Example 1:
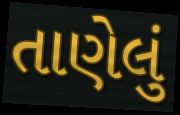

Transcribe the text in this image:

તાણેલું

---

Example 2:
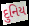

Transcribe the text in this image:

દુનિય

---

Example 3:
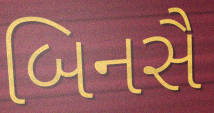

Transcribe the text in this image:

બિનસૈ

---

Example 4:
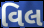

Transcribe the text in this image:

વિલ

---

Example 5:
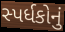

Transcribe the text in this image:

સ્પર્ધકોનું